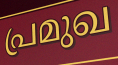
പ്രമുഖ